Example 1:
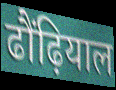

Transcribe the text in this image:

ढौंढ़ियाल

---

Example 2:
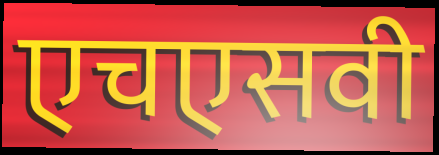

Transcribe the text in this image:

एचएसवी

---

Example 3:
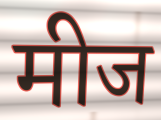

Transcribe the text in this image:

मीज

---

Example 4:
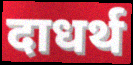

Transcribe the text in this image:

दाधर्थ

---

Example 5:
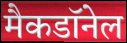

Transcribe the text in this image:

मैकडॉनेल